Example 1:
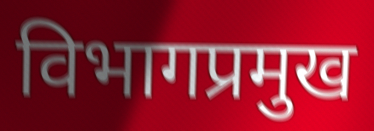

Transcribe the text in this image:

विभागप्रमुख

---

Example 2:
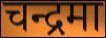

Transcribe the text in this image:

चन्द्रमा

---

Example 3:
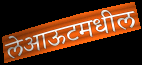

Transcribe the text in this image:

लेआऊटमधील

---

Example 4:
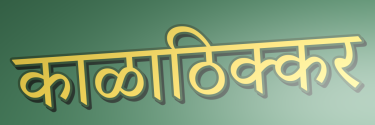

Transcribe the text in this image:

काळाठिक्कर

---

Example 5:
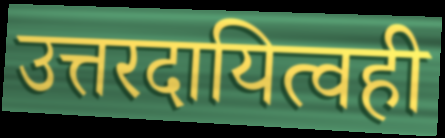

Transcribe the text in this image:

उत्तरदायित्वही